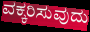
ವಕ್ಕರಿಸುವುದು